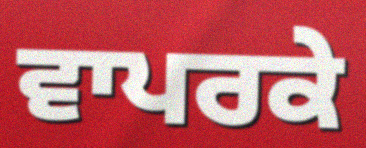
ਵਾਪਰਕੇ